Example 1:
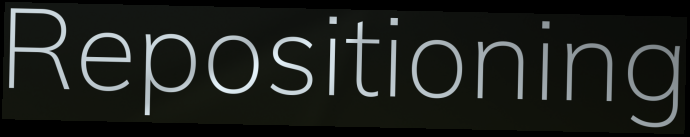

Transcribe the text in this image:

Repositioning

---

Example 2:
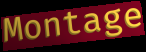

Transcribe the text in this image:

Montage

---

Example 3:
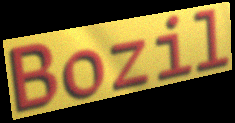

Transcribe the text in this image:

Bozil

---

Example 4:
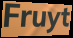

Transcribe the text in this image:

Fruyt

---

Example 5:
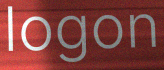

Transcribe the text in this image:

logon